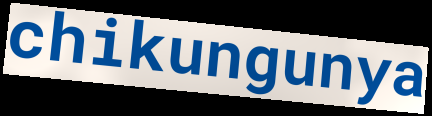
chikungunya